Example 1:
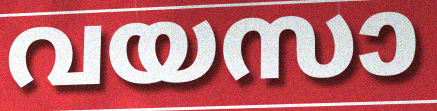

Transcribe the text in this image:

വയസാ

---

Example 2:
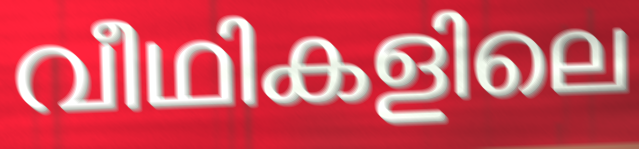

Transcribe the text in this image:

വീഥികളിലെ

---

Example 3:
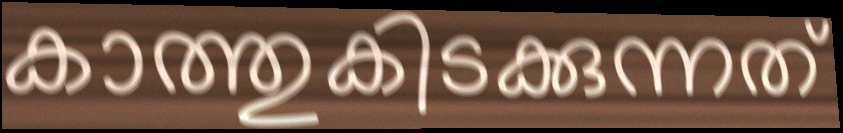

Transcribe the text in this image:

കാത്തുകിടക്കുന്നത്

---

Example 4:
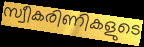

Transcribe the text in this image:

സ്വീകരിണികളുടെ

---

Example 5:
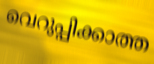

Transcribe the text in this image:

വെറുപ്പിക്കാത്ത